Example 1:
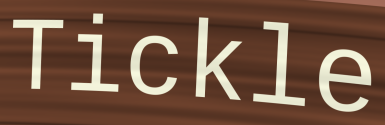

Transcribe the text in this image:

Tickle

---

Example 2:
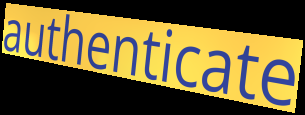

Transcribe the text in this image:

authenticate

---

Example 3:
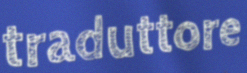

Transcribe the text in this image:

traduttore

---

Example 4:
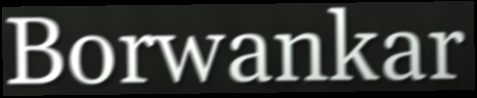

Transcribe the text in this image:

Borwankar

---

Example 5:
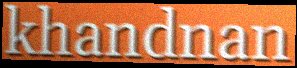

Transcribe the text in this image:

khandnan